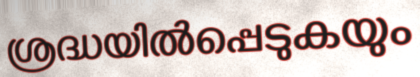
ശ്രദ്ധയിൽപ്പെടുകയും